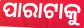
ପାରାଟାକୁ